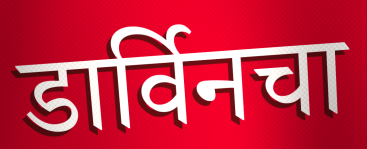
डार्विनचा